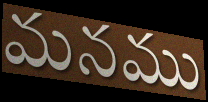
మనము